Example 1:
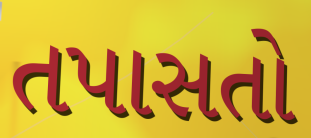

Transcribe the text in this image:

તપાસતો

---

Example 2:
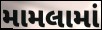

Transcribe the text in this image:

મામલામાં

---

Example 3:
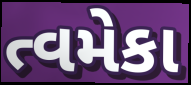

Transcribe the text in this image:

ત્વમેકા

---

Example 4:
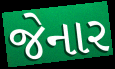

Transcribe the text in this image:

જેનાર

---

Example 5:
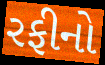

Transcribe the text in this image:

રફીનો